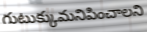
గుటుక్కుమనిపించాలని